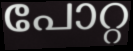
പോറ്റ